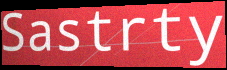
Sastrty